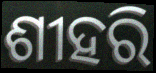
ଶୀହରି